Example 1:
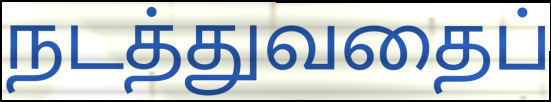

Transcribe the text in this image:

நடத்துவதைப்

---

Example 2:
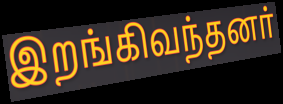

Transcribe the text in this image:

இறங்கிவந்தனர்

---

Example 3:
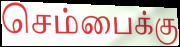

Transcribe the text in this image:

செம்பைக்கு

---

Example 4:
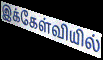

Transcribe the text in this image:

இக்கேள்வியில்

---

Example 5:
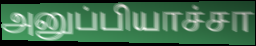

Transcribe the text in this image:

அனுப்பியாச்சா